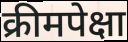
क्रीमपेक्षा